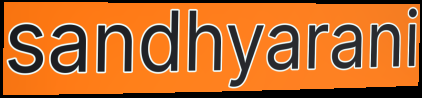
sandhyarani